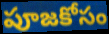
పూజకోసం